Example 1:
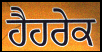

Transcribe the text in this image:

ਹੈਹਰੇਕ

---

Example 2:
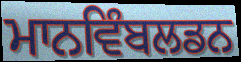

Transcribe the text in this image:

ਮਾਨਵਿੰਬਲਡਨ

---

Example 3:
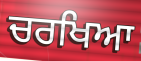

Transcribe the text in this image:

ਚਰਖਿਆ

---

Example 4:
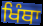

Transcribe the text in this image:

ਖਿੰਥਾ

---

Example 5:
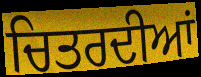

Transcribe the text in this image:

ਚਿਤਰਦੀਆਂ